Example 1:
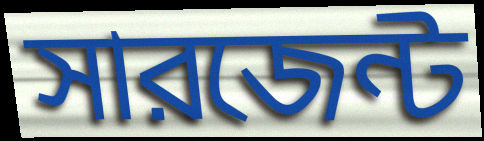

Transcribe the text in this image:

সারজেন্ট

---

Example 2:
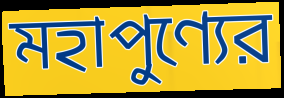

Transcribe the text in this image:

মহাপুণ্যের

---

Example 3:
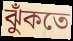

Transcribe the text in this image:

ঝুঁকতে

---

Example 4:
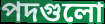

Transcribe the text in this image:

পদগুলো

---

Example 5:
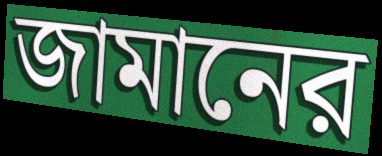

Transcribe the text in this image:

জামানের